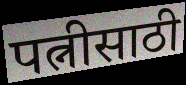
पत्नीसाठी